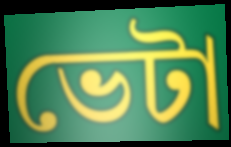
ভেটা